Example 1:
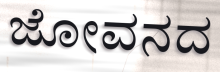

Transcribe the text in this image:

ಜೋವನದ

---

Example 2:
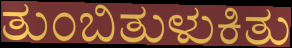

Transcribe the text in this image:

ತುಂಬಿತುಳುಕಿತು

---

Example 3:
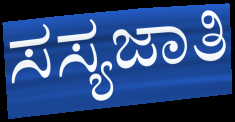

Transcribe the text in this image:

ಸಸ್ಯಜಾತಿ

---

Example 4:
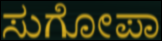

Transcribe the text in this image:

ಸುಗೋಪಾ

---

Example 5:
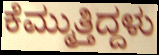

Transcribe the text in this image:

ಕೆಮ್ಮುತ್ತಿದ್ದಳು